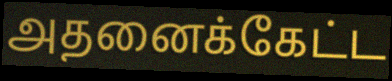
அதனைக்கேட்ட